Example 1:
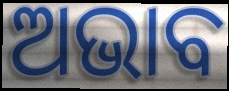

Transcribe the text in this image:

ଅଭାବ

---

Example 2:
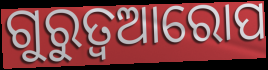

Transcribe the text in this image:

ଗୁରୁତ୍ଵଆରୋପ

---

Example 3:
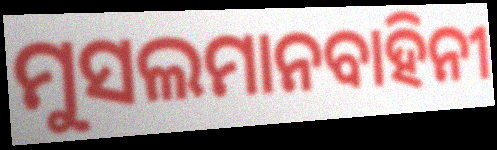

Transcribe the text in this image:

ମୁସଲମାନବାହିନୀ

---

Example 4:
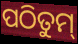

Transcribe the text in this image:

ପଠିତୁମ୍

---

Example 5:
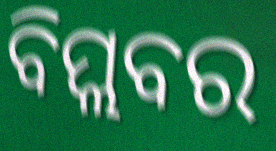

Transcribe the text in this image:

ବିପ୍ଲବର